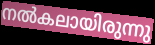
നൽകലായിരുന്നു